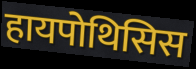
हायपोथिसिस